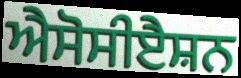
ਐਸੋਸੀੲੈਸ਼ਨ